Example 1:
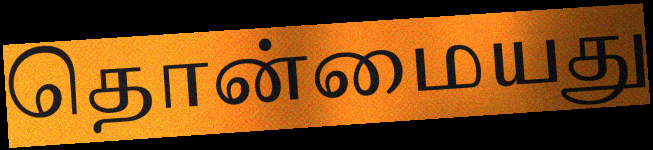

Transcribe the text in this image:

தொன்மையது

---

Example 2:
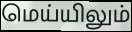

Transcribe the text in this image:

மெய்யிலும்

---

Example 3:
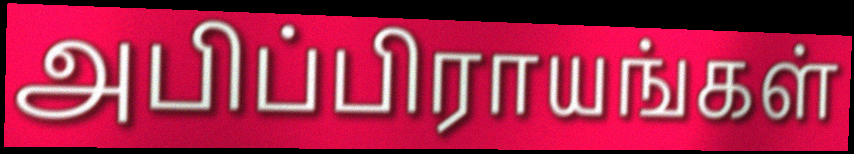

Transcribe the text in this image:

அபிப்பிராயங்கள்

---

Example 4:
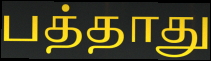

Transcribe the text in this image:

பத்தாது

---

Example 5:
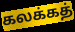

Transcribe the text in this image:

கலக்கத்